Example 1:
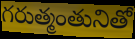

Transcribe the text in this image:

గరుత్మంతునితో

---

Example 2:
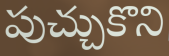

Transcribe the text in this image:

పుచ్చుకొని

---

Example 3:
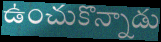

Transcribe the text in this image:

ఉంచుకొన్నాడు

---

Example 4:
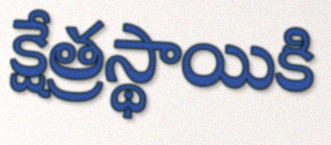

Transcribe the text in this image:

క్షేత్రస్థాయికి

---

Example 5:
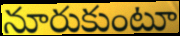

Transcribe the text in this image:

నూరుకుంటూ